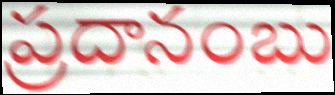
ప్రదానంబు